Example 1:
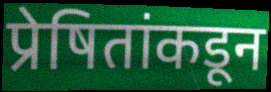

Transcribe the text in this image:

प्रेषितांकडून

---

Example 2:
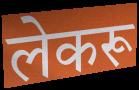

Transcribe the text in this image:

लेकरू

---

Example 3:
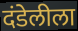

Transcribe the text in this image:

दंडेलीला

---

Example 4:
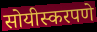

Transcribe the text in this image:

सोयीस्करपणे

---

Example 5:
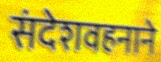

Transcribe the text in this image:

संदेशवहनाने